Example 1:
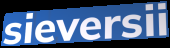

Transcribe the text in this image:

sieversii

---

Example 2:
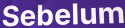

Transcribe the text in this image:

Sebelum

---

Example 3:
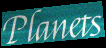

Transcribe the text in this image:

Planets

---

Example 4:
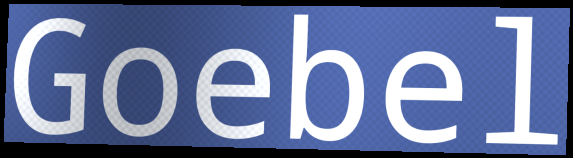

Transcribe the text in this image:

Goebel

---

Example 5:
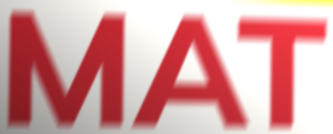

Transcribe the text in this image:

MAT